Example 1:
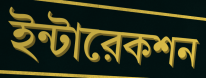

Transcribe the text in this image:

ইন্টারেকশন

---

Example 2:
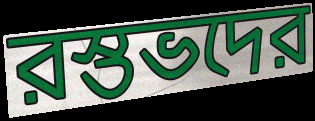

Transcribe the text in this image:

রস্তভদের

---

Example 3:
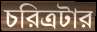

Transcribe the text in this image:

চরিত্রটার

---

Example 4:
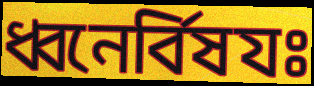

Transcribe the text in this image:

ধ্বনের্বিষযঃ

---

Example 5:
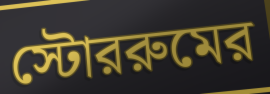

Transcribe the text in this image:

স্টোররুমের